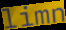
limn